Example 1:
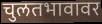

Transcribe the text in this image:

चुलतभावावर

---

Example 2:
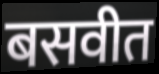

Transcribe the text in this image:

बसवीत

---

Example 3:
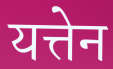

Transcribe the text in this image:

यत्तेन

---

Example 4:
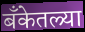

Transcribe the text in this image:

बँकेतल्या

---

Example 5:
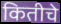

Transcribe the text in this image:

कितीचे